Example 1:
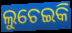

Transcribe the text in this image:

ଲୁଚେଇକି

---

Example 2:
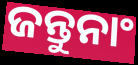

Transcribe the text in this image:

ଜନ୍ତୁନାଂ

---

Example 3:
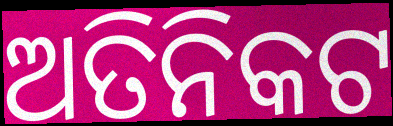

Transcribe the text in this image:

ଅତିନିକଟ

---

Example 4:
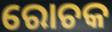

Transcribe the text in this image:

ରୋଚକ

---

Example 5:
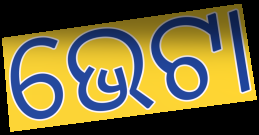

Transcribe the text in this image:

ଭେଟା